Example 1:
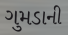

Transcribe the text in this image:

ગુમડાની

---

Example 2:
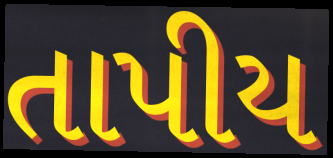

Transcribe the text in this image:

તાપીય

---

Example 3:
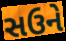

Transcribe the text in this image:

સઉને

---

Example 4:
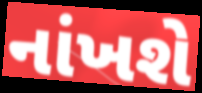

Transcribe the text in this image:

નાંખશે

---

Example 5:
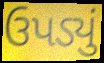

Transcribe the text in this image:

ઉપડ્યું